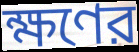
ক্ষণের